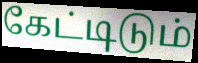
கேட்டிடும்